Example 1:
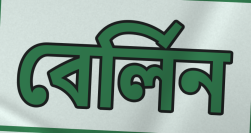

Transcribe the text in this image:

বের্লিন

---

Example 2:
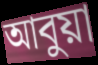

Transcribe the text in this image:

আবুয়া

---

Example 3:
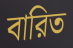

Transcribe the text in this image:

বারিত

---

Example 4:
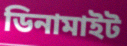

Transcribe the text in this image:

ডিনামাইট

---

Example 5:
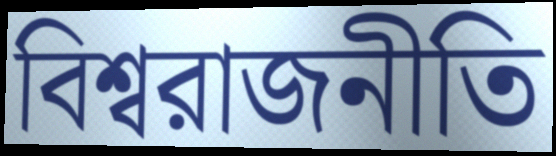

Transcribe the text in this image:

বিশ্বরাজনীতি